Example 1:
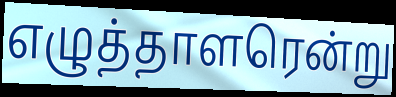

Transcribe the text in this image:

எழுத்தாளரென்று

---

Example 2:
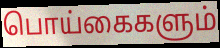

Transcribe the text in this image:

பொய்கைகளும்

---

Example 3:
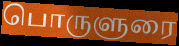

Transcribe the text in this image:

பொருளுரை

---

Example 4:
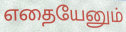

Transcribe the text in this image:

எதையேனும்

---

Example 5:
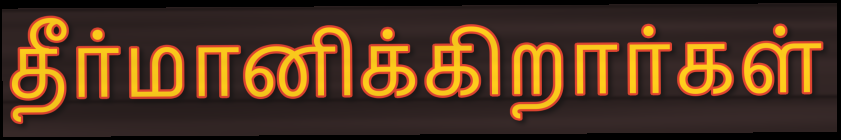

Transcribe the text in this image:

தீர்மானிக்கிறார்கள்